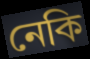
নেকি